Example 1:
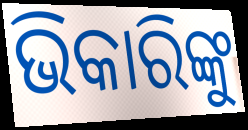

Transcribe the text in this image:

ଭିକାରିଙ୍କୁ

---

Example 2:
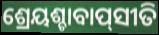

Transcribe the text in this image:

ଶ୍ରେୟଶ୍ଚାବାପ୍‌ସୀତି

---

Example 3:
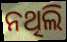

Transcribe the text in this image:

ନଥିଲି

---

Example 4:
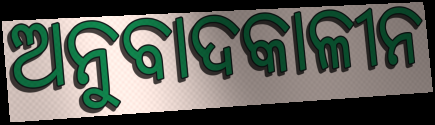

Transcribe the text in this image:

ଅନୁବାଦକାଳୀନ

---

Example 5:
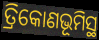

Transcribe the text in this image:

ତ୍ରିକୋଣଭୂମିସ୍ଥ